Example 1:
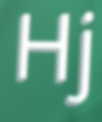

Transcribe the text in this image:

Hj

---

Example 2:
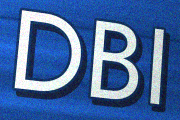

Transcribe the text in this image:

DBI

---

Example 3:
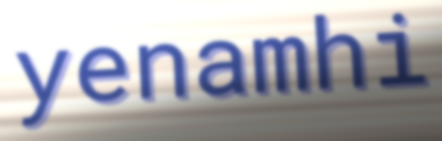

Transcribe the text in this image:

yenamhi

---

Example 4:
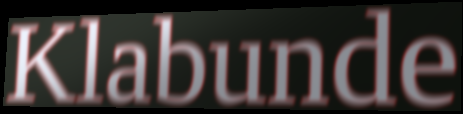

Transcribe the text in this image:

Klabunde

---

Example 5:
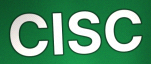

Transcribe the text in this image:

CISC